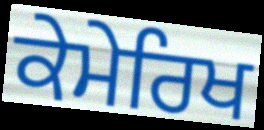
ਕੇਮੇਰਿਖ